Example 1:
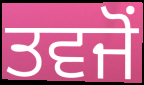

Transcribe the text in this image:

ਤਵਜੋਂ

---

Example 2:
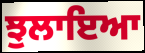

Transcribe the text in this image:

ਝੁਲਾਇਆ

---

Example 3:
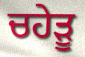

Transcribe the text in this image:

ਚਹੇੜੂ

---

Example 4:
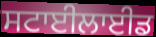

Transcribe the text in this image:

ਸਟਾਈਲਾਈਡ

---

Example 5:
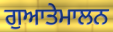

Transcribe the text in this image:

ਗੁਆਤੇਮਾਲਨ